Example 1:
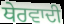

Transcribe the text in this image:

ਥੇਰਵਾਦੀ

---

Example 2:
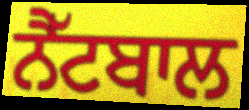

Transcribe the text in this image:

ਨੈੱਟਬਾਲ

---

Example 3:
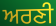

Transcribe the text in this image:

ਅਰਣੀ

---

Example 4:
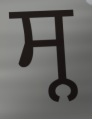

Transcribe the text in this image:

ਸ੍ਨ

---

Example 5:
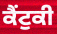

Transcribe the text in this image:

ਕੈਂਟੁਕੀ